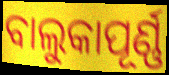
ବାଲୁକାପୂର୍ଣ୍ଣ